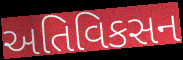
અતિવિકસન